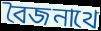
বৈজনাথে